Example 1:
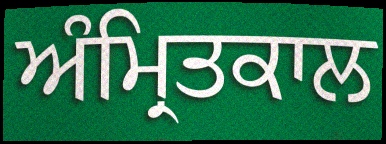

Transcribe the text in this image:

ਅੰਮ੍ਰਿਤਕਾਲ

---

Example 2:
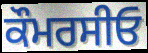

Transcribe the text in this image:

ਕੌਮਰਸੀਓ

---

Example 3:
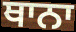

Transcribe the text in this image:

ਥਾਨਾ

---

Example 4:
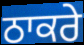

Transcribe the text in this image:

ਠਾਕਰੇ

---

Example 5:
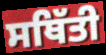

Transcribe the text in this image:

ਸਥਿੱਤੀ